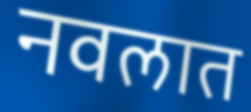
नवलात